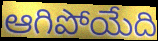
ఆగిపోయేది